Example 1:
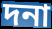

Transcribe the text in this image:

দনা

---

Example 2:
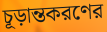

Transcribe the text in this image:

চূড়ান্তকরণের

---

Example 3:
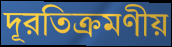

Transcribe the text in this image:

দূরতিক্রমণীয়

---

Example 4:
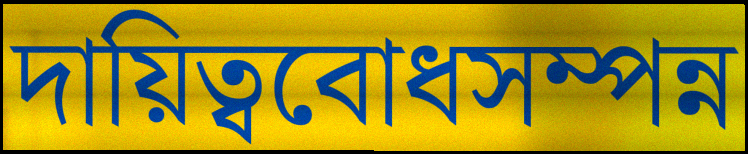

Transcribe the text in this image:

দায়িত্ববোধসম্পন্ন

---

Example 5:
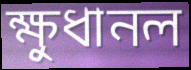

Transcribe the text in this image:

ক্ষুধানল